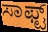
ಸಾಫ್ಟ್